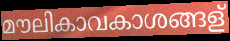
മൗലികാവകാശങ്ങള്